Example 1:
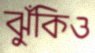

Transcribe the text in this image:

ঝুঁকিও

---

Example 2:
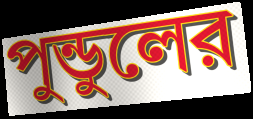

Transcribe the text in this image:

পুন্ডুলের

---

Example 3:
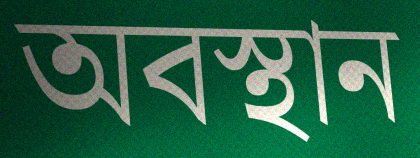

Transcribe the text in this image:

অবস্থান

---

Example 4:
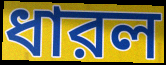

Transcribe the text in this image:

ধারল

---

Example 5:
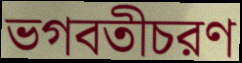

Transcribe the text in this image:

ভগবতীচরণ